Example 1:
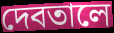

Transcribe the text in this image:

দেবতালে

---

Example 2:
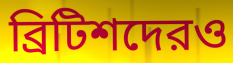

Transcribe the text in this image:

ব্রিটিশদেরও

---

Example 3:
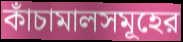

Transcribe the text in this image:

কাঁচামালসমূহের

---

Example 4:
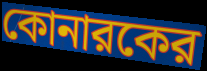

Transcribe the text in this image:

কোনারকের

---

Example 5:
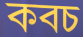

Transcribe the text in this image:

কবচ